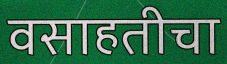
वसाहतीचा